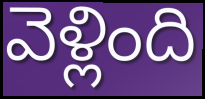
వెళ్లింది